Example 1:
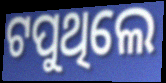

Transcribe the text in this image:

ଟପୁଥିଲେ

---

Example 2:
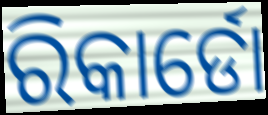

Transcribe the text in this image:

ରିକାର୍ଡୋ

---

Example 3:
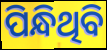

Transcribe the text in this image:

ପିନ୍ଧିଥିବି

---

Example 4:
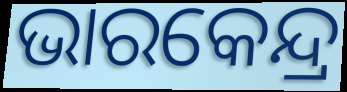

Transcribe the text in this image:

ଭାରକେନ୍ଦ୍ର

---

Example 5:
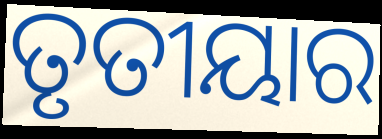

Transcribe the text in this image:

ତୃତୀୟାର